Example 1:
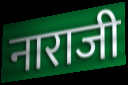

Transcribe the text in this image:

नाराजी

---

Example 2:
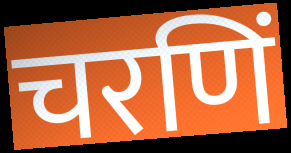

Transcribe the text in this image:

चरणिं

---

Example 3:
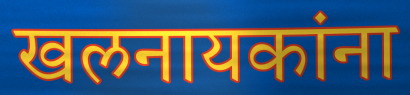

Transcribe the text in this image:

खलनायकांना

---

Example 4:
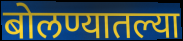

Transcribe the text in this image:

बोलण्यातल्या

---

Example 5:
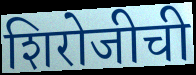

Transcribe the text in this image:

शिरोजीची